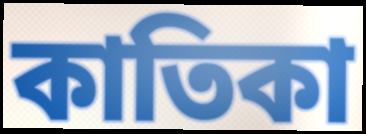
কাতিকা